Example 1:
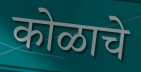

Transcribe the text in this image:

कोळाचे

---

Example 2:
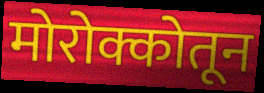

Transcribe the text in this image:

मोरोक्कोतून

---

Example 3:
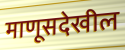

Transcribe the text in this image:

माणूसदेखील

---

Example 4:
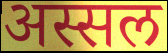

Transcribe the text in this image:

अस्सल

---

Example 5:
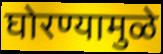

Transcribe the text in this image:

घोरण्यामुळे